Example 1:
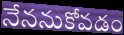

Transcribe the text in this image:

నేననుకోవడం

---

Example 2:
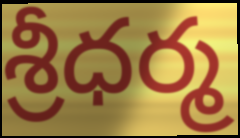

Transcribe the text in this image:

శ్రీధర్మ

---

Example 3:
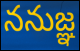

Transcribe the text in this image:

ననుజ్ఞ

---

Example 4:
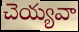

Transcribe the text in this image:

చెయ్యవా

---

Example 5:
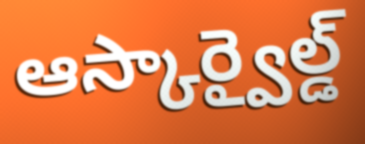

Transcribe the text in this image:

ఆస్కార్వైల్డ్